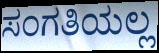
ಸಂಗತಿಯಲ್ಲ